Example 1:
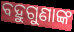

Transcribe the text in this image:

ବହୁଗୁଣାଙ୍କ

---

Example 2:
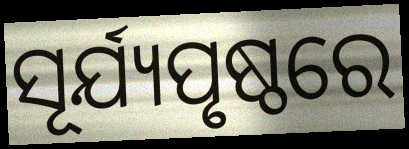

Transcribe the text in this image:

ସୂର୍ଯ୍ୟପୃଷ୍ଠରେ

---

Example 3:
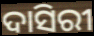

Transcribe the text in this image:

ଦାସିରୀ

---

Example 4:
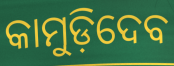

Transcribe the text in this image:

କାମୁଡ଼ିଦେବ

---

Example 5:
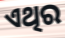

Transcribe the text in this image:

ଏଥିର